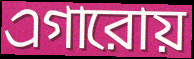
এগারোয়